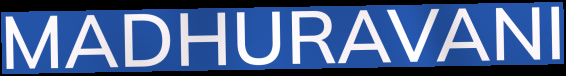
MADHURAVANI